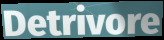
Detrivore